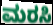
ಮರಸಿ